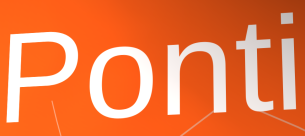
Ponti